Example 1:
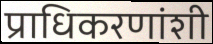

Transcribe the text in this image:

प्राधिकरणांशी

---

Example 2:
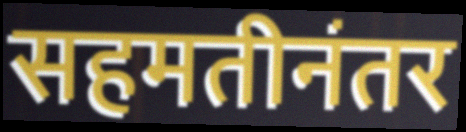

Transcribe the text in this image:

सहमतीनंतर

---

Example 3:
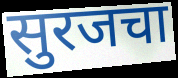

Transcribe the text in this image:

सुरजचा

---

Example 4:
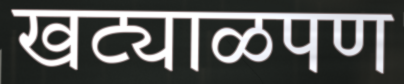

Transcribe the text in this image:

खट्याळपण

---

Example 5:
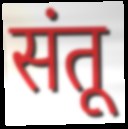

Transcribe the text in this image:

संतू